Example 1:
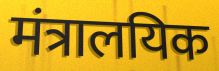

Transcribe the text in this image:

मंत्रालयिक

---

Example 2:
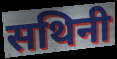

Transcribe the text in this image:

सथिनी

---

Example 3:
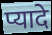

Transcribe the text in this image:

प्यादे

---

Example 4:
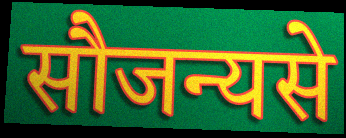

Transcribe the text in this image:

सौजन्यसे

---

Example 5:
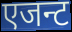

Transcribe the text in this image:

एजन्ट